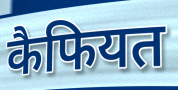
कैफियत